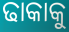
ଢାକାକୁ